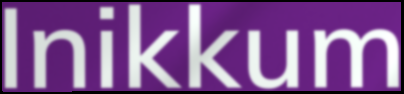
Inikkum